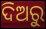
ଦିଅରୁ